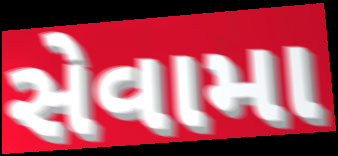
સેવામા